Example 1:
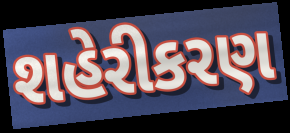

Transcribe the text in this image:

શહેરીકરણ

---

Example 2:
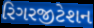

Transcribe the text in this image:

રિગરજીટેશન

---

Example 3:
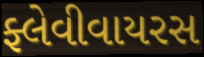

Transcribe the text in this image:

ફ્લેવીવાયરસ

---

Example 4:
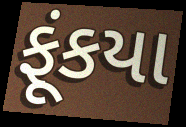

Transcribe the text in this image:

ફૂંકયા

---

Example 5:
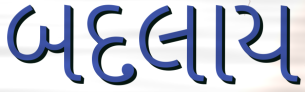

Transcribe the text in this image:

બદલાય